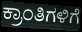
ಕ್ರಾಂತಿಗಳಿಗೆ